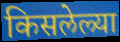
किसलेल्या